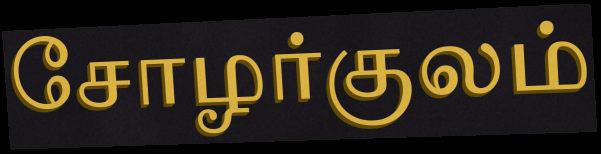
சோழர்குலம்